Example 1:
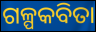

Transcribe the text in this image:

ଗଳ୍ପକବିତା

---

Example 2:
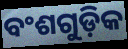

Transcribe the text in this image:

ବଂଶଗୁଡ଼ିକ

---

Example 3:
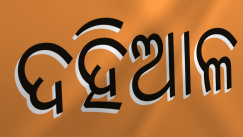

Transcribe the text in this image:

ଦହିଆଳ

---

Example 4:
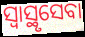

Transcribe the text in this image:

ସ୍ୱାସ୍ଥୃସେବା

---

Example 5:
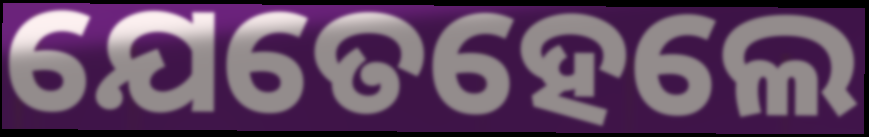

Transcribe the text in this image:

ଯେତେହେଲେ